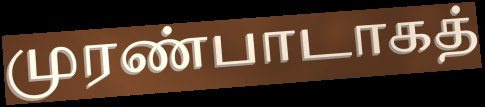
முரண்பாடாகத்